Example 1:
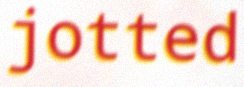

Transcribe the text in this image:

jotted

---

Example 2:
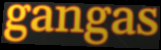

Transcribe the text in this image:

gangas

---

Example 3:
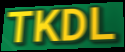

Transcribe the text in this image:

TKDL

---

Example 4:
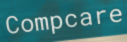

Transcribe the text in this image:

Compcare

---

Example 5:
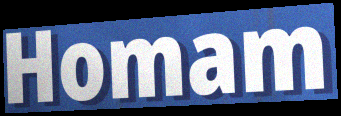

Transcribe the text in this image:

Homam